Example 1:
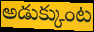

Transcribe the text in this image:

అడుక్కుంట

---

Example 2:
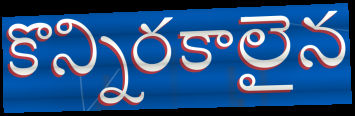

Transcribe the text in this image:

కొన్నిరకాలైన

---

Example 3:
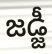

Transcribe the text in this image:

జడ్జీ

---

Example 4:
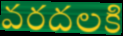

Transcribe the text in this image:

వరదలకి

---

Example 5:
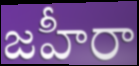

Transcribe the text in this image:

జహీరా